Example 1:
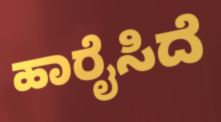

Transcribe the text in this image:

ಹಾರೈಸಿದೆ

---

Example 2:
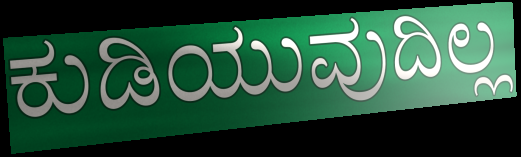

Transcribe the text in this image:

ಕುಡಿಯುವುದಿಲ್ಲ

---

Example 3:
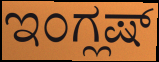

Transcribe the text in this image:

ಇಂಗ್ಲಷ್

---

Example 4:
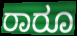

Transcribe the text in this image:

ರಾರೂ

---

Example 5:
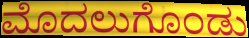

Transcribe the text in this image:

ಮೊದಲುಗೊಂಡು